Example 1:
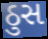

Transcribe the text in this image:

ઠુસ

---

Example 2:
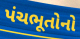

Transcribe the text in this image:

પંચભૂતોનો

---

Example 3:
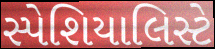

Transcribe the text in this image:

સ્પેશિયાલિસ્ટે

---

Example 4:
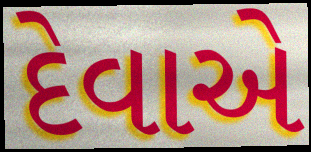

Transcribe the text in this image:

દેવાએ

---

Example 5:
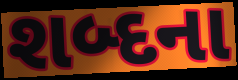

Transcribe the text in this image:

શબ્દના